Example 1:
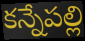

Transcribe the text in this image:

కన్నేపల్లి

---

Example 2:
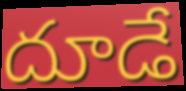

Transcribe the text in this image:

దూడే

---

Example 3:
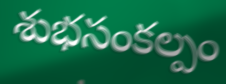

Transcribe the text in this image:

శుభసంకల్పం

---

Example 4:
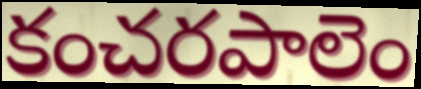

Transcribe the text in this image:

కంచరపాలెం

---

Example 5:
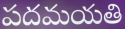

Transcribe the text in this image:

పదమయతి